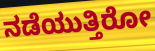
ನಡೆಯುತ್ತಿರೋ